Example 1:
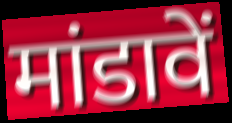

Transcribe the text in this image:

मांडावें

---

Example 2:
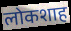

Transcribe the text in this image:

लोकशाह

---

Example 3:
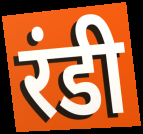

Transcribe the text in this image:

रंडी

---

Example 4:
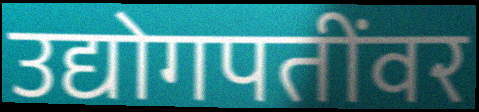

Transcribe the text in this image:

उद्योगपतींवर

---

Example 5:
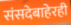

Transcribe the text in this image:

संसदेबाहेरही